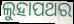
ଲୁହାପଥର